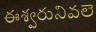
ఈశ్వరునివలె